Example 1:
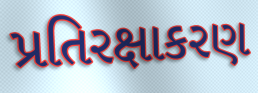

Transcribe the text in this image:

પ્રતિરક્ષાકરણ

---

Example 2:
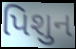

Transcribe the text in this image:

પિશુન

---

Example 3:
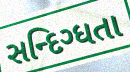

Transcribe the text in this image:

સન્દિગ્ધતા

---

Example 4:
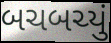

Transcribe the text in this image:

બચબચ્યું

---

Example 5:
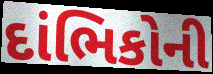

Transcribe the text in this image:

દાંભિકોની